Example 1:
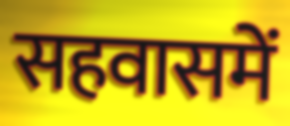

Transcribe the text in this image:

सहवासमें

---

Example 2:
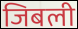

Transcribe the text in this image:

जिबली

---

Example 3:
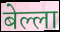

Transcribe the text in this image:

बेल्ला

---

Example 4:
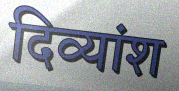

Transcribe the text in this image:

दिव्यांश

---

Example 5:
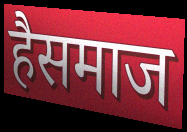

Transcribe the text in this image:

हैसमाज